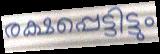
രക്ഷപ്പെട്ടിട്ടും